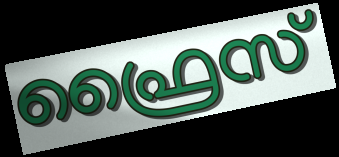
ഫ്രൈസ്